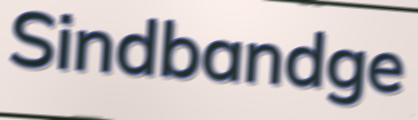
Sindbandge